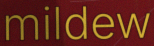
mildew